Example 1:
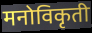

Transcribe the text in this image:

मनोविकृती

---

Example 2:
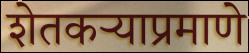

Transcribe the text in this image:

शेतकऱ्याप्रमाणे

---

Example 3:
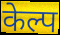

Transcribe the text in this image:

केल्प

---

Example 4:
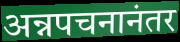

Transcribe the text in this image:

अन्नपचनानंतर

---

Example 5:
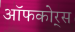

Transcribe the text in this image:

ऑफकोर्स